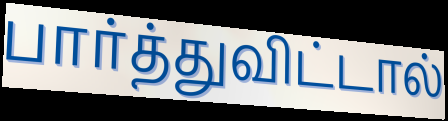
பார்த்துவிட்டால்